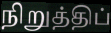
நிறுத்திப்